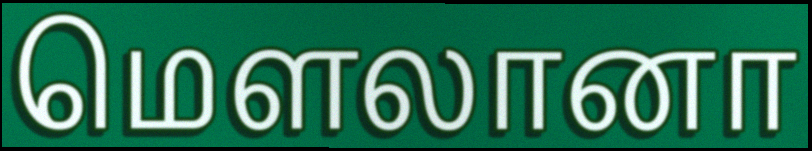
மௌலானா